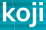
koji